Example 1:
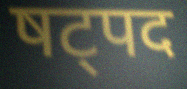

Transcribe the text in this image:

षट्पद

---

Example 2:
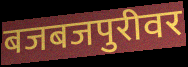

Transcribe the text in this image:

बजबजपुरीवर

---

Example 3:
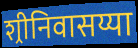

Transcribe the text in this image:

श्रीनिवासय्या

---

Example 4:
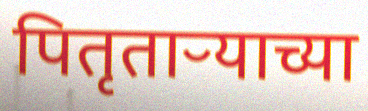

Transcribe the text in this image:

पितृताऱ्याच्या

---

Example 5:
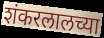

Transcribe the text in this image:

शंकरलालच्या